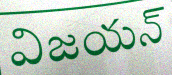
విజయన్